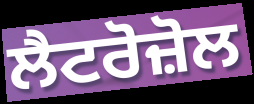
ਲੈਟਰੋਜ਼ੋਲ